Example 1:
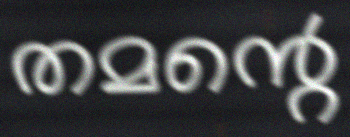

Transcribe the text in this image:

തമന്റെ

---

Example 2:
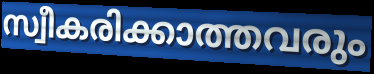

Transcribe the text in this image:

സ്വീകരിക്കാത്തവരും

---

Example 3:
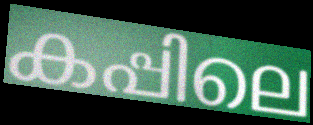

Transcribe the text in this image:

കപ്പിലെ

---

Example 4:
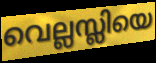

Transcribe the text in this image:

വെല്ലസ്ലിയെ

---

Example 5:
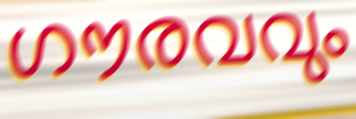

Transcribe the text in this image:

ഗൗരവവും